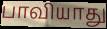
பாவியாது